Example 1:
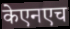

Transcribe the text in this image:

केएनएच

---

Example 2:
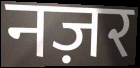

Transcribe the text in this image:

नज़र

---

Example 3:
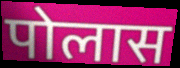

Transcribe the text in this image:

पोलास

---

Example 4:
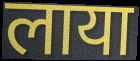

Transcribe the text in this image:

लाया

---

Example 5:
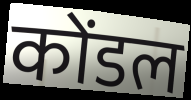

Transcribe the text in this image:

कोंडल